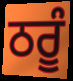
ਠਰੂੰ